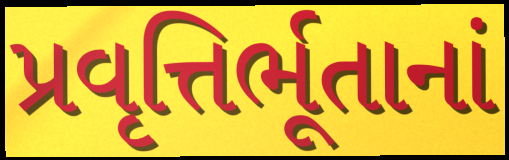
પ્રવૃત્તિર્ભૂતાનાં